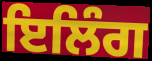
ਇਲਿੰਗ